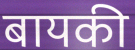
बायकी